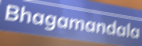
Bhagamandala